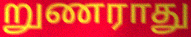
றுணராது